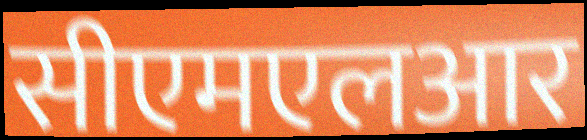
सीएमएलआर